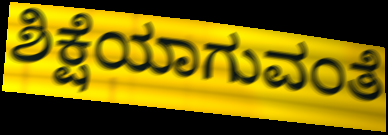
ಶಿಕ್ಷೆಯಾಗುವಂತೆ